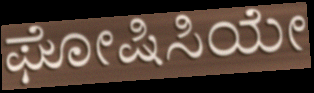
ಘೋಷಿಸಿಯೇ